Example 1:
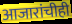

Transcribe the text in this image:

आजारांचीही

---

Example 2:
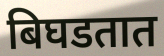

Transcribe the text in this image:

बिघडतात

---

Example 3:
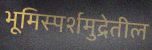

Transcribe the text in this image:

भूमिस्पर्शमुद्रेतील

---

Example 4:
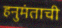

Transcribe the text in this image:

हनुमंताची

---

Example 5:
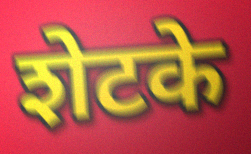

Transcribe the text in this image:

शेटके